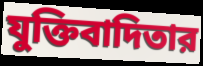
যুক্তিবাদিতার